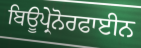
ਬਿਊਪ੍ਰੇਨੋਰਫਾਈਨ